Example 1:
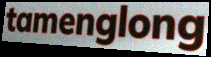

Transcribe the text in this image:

tamenglong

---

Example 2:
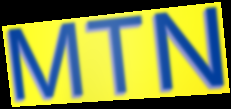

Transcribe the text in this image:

MTN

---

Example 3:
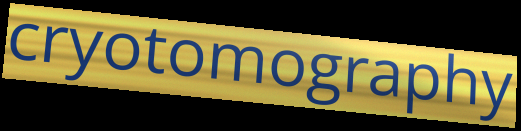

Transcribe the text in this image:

cryotomography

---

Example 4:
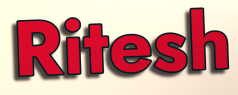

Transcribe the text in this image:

Ritesh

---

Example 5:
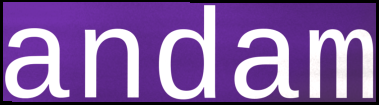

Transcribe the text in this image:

andam